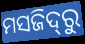
ମସଜିଦ୍‌ରୁ